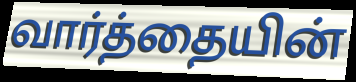
வார்த்தையின்